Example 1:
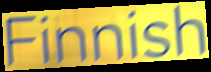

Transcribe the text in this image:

Finnish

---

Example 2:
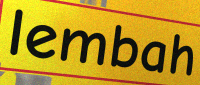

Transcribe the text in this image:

lembah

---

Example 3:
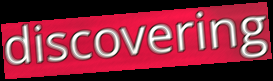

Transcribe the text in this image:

discovering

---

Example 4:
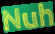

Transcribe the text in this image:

Nuh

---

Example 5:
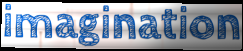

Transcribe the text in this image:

imagination